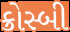
ક્રોસ્બી